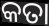
କତା